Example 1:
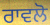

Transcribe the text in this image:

ਰਾਵਲੋ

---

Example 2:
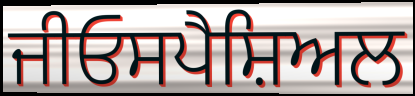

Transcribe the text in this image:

ਜੀਓਸਪੈਸ਼ਿਅਲ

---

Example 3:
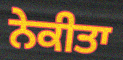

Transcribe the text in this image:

ਨੇਕੀਤਾ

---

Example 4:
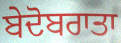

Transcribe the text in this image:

ਬੇਦੋਬਰਾਤਾ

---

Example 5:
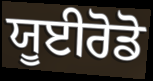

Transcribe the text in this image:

ਯੂਈਰੋਡੋ